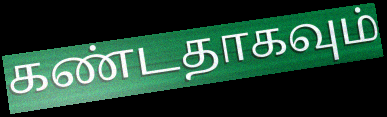
கண்டதாகவும்